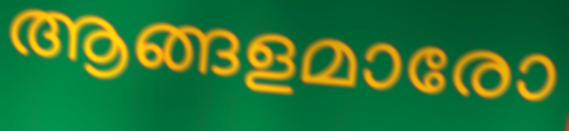
ആങ്ങളമാരോ